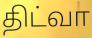
திட்வா